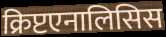
क्रिप्टएनालिसिस